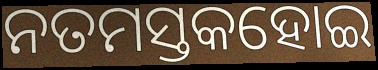
ନତମସ୍ତକହୋଇ